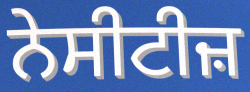
ਨੇਸੀਟੀਜ਼